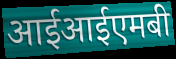
आईआईएमबी